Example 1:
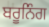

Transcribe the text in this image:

ਬਰੂਨਿੰਗ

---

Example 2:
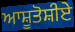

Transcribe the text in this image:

ਆਸ਼ੂਤੋਸ਼ੀਏ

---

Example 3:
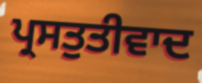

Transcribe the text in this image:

ਪ੍ਰਸਤੁਤੀਵਾਦ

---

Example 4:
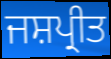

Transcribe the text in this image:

ਜਸ਼ਪ੍ਰੀਤ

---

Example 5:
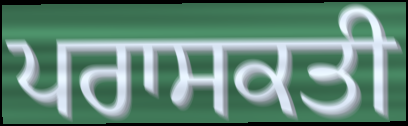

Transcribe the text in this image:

ਪਰਾਸਕਤੀ